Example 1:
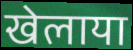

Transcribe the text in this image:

खेलाया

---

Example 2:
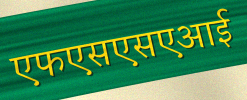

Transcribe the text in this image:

एफएसएसएआई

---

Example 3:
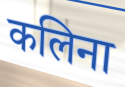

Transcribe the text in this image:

कलिना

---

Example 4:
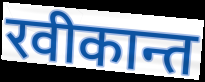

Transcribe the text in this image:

रवीकान्त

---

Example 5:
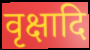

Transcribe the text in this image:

वृक्षादि